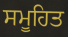
ਸਮੂਹਿਤ